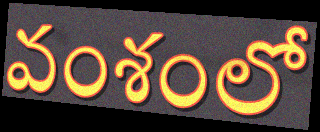
వంశంలో